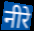
नीरे